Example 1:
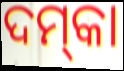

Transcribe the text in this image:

ଦମ୍‌କା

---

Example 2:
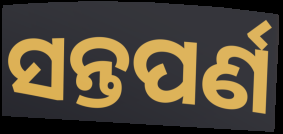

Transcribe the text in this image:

ସନ୍ତପର୍ଣ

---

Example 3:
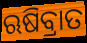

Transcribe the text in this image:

ଋଷିବ୍ରାତ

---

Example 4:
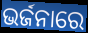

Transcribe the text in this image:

ଭର୍ଜନାରେ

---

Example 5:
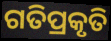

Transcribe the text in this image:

ଗତିପ୍ରକୃତି